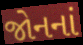
જોનનાં